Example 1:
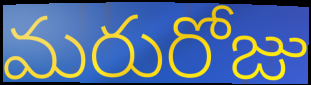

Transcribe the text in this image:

మరురోజు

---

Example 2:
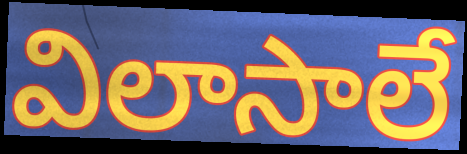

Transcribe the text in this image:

విలాసాలే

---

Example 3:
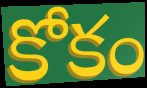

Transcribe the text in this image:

కోకం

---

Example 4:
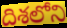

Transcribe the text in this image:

దిశలోని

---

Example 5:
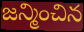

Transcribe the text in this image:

జన్మించిన